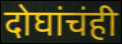
दोघांचंही